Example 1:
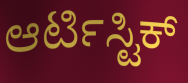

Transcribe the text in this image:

ಆರ್ಟಿಸ್ಟಿಕ್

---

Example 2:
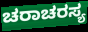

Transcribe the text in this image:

ಚರಾಚರಸ್ಯ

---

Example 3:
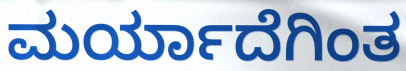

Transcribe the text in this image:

ಮರ್ಯಾದೆಗಿಂತ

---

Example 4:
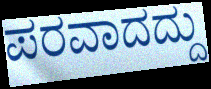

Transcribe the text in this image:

ಪರವಾದದ್ದು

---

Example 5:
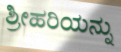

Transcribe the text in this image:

ಶ್ರೀಹರಿಯನ್ನು